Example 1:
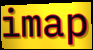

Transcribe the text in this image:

imap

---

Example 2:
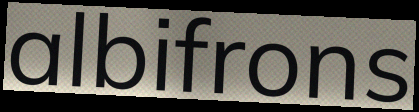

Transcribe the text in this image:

albifrons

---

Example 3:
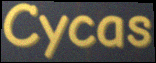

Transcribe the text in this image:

Cycas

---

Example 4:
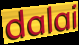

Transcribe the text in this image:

dalai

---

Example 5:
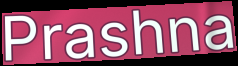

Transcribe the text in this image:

Prashna